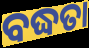
ବଦ୍ଧତା